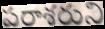
పరాశరుని